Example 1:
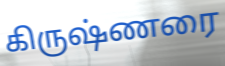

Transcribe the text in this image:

கிருஷ்ணரை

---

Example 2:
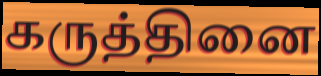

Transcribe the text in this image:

கருத்தினை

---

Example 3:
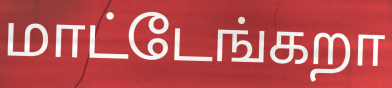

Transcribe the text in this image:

மாட்டேங்கறா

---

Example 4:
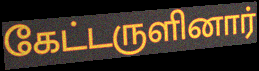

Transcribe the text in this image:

கேட்டருளினார்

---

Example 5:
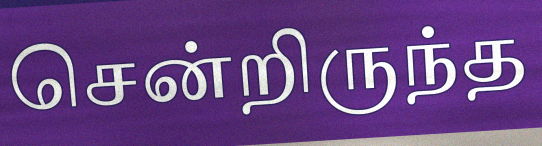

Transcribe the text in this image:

சென்றிருந்த